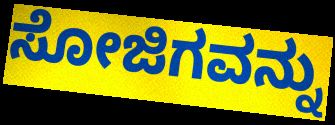
ಸೋಜಿಗವನ್ನು